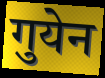
गुयेन